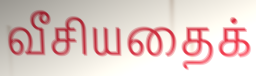
வீசியதைக்